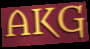
AKG